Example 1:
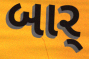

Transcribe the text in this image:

બાર્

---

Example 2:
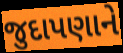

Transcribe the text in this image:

જુદાપણાને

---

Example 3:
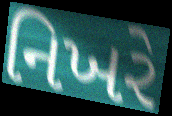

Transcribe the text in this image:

નિખરે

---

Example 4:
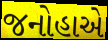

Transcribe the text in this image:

જનોહાએ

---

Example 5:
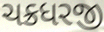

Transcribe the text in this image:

ચક્રધરજી